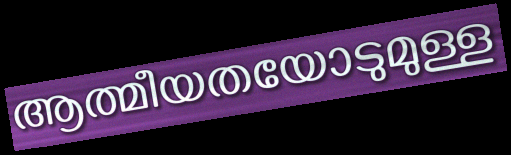
ആത്മീയതയോടുമുള്ള